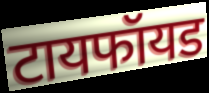
टायफॉयड